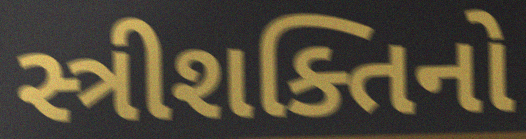
સ્ત્રીશક્તિનો